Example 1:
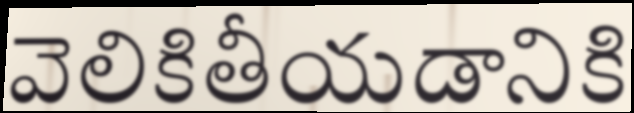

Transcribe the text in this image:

వెలికితీయడానికి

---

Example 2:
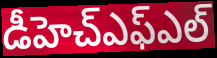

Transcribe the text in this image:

డీహెచ్ఎఫ్ఎల్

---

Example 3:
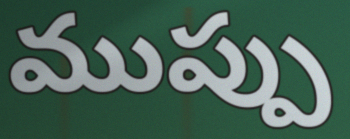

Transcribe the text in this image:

ముప్పు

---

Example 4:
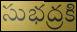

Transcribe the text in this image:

సుభద్రకి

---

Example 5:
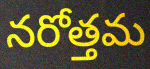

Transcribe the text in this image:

నరోత్తమ